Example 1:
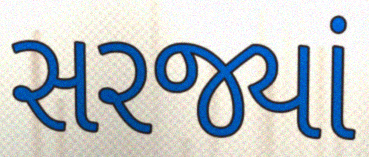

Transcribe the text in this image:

સરજ્યાં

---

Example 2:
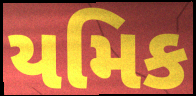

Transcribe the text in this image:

યમિક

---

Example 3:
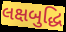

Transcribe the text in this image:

લક્ષબુદ્ધિ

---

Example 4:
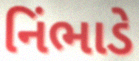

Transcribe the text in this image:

નિંભાડે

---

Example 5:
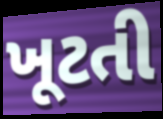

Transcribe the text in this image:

ખૂટતી